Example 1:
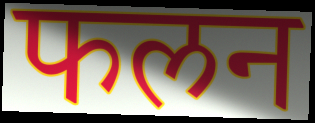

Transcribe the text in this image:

फलन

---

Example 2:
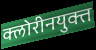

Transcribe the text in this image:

क्लोरीनयुक्त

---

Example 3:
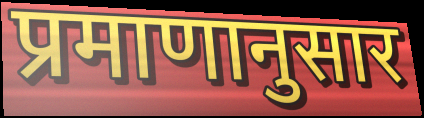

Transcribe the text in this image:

प्रमाणानुसार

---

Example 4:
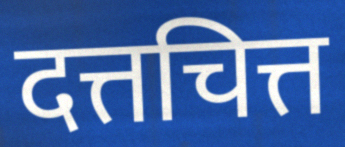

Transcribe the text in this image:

दत्तचित्त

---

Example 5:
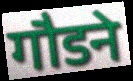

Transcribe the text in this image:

गौडने